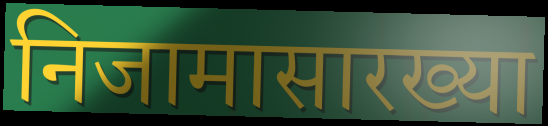
निजामासारख्या